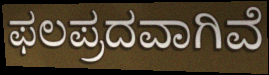
ಫಲಪ್ರದವಾಗಿವೆ